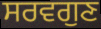
ਸਰਵਗੁਣ